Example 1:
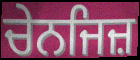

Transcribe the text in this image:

ਚੇਨਜਿਜ਼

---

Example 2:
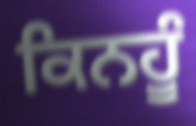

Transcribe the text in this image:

ਕਿਨਹੂੰ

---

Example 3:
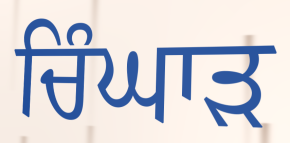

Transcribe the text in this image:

ਚਿੰਘਾੜ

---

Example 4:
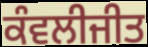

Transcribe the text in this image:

ਕੰਵਲੀਜੀਤ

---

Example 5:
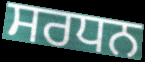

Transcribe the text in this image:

ਸਰਧਨ